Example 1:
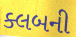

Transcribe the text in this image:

ક્લબની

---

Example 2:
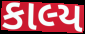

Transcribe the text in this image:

કાલ્ય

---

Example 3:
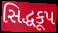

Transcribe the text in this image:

સિદ્ધકૂપ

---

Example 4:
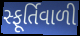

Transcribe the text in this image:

સ્ફૂર્તિવાળી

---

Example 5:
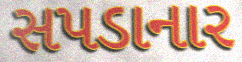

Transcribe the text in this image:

સપડાનાર